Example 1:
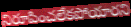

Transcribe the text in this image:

నిరూపించలేకపోయారని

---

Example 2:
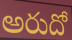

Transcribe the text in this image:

అరుదో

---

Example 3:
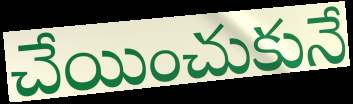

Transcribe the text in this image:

చేయించుకునే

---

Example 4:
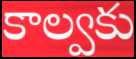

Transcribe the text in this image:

కాల్వకు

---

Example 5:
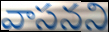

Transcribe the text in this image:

వాసనని